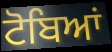
ਟੋਬਿਆਂ